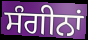
ਸੰਗੀਨਾਂ